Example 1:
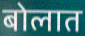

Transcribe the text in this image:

बोलात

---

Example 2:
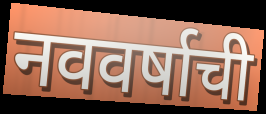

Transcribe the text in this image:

नववर्षाची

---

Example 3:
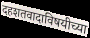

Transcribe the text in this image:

दहशतवादाविषयीच्या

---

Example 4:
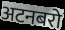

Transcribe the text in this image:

अटनबरो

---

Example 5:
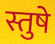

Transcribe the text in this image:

स्तुषे